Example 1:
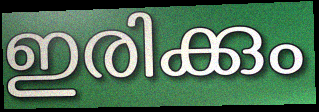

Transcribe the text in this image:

ഇരിക്കും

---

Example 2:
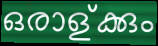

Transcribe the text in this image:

ഒരാള്ക്കും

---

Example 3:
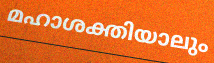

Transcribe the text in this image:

മഹാശക്തിയാലും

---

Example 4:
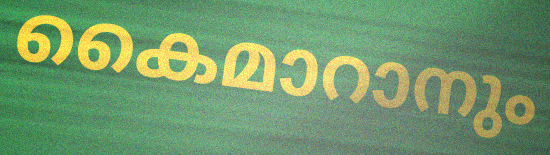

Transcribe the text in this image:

കൈമാറാനും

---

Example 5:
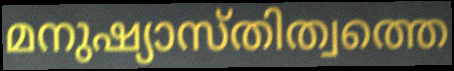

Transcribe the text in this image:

മനുഷ്യാസ്തിത്വത്തെ